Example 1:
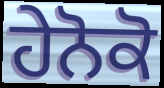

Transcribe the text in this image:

ਹੇਨੋਕੋ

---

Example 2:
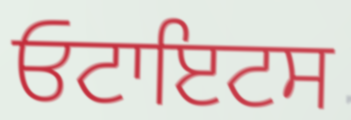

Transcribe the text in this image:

ਓਟਾਇਟਸ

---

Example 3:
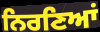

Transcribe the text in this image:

ਨਿਰਣਿਆਂ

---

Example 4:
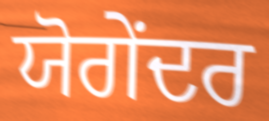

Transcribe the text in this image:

ਯੋਗੇਂਦਰ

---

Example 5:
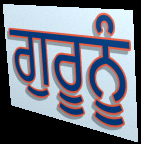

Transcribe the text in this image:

ਗੁਰੂਨੂੰ